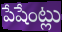
పేషేంట్లు